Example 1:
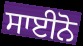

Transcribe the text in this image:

ਸਾਈਨੋ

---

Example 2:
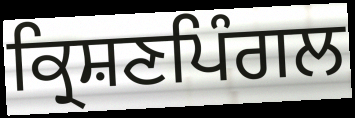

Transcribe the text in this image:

ਕ੍ਰਿਸ਼ਣਪਿੰਗਲ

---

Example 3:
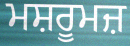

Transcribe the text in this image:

ਮਸ਼ਰੂਮਜ਼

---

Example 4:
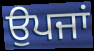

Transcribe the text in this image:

ਉਪਜਾਂ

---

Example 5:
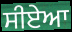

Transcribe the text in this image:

ਸੀਏਆ